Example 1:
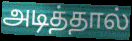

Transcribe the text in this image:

அடித்தால்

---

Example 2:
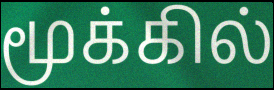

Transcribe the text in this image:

மூக்கில்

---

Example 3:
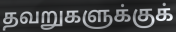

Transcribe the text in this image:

தவறுகளுக்குக்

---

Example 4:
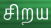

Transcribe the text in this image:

சிறய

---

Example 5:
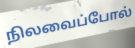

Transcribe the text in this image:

நிலவைப்போல்